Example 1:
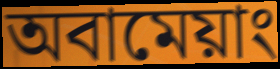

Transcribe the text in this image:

অবামেয়াং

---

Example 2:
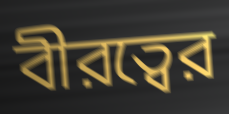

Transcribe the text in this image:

বীরত্বের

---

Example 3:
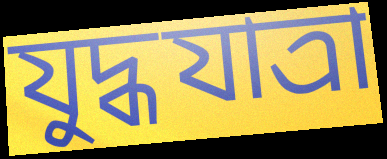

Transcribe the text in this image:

যুদ্ধযাত্রা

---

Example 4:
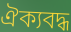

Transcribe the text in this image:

ঐক্যবদ্ধ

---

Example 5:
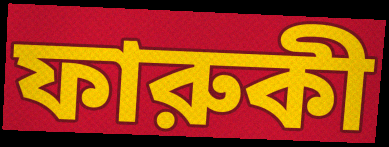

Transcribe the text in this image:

ফারুকী